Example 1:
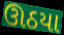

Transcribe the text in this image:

ઊઠયા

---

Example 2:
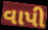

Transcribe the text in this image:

વાપી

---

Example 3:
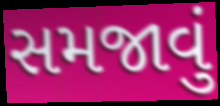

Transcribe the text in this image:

સમજાવું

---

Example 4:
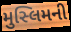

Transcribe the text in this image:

મુસ્લિમની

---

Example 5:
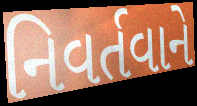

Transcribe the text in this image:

નિવર્તવાને